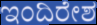
ಇಂದಿರೇಶ